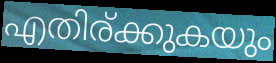
എതിര്ക്കുകയും